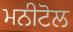
ਮਨੀਟੋਲ